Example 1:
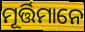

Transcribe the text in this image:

ମୂର୍ତ୍ତିମାନେ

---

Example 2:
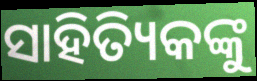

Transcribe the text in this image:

ସାହିତ୍ୟିକଙ୍କୁ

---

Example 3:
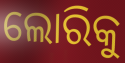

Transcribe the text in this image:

ଲୋରିକୁ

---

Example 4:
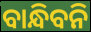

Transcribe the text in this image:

ବାନ୍ଧିବନି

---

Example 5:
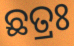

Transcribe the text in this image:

ଛତ୍ରଃ